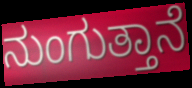
ನುಂಗುತ್ತಾನೆ